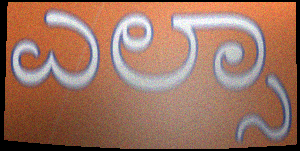
ಎಲ್ಸಾ